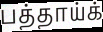
பத்தாய்க்